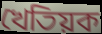
খেতিয়ক